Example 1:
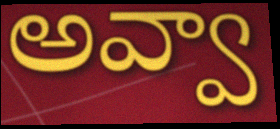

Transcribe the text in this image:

అవ్వా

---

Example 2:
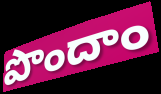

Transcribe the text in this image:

పొందాం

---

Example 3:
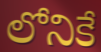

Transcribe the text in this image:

లోనికే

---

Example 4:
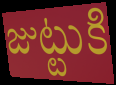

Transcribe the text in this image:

జుట్టుకి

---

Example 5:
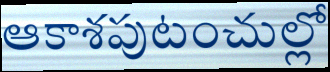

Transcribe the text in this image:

ఆకాశపుటంచుల్లో